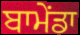
ਬਾਮੇਂਡਾ